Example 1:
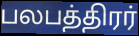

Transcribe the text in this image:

பலபத்திரர்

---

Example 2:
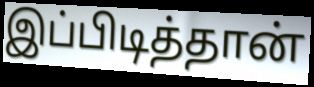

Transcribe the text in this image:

இப்பிடித்தான்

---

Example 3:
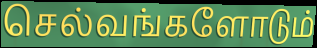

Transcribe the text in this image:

செல்வங்களோடும்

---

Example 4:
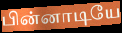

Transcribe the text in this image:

பின்னாடியே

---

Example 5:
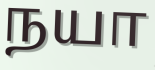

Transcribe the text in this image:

நயா